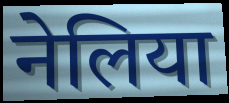
नेलिया